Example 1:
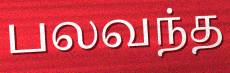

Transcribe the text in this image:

பலவந்த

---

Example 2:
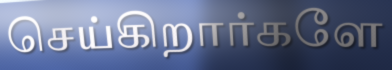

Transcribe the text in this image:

செய்கிறார்களே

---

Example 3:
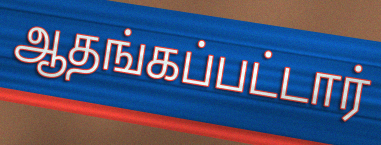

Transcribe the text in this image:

ஆதங்கப்பட்டார்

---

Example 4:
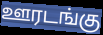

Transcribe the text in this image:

ஊரடங்கு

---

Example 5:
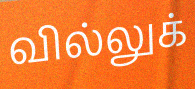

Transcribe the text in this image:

வில்லுக்